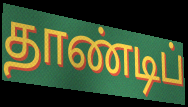
தாண்டிப்